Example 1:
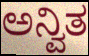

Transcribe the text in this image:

ಅನ್ವಿತ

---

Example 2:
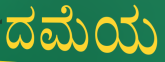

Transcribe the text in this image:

ದಮೆಯ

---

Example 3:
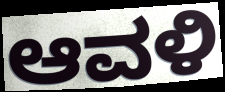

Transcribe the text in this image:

ಆವಳಿ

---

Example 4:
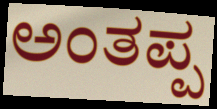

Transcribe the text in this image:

ಅಂತಪ್ಪ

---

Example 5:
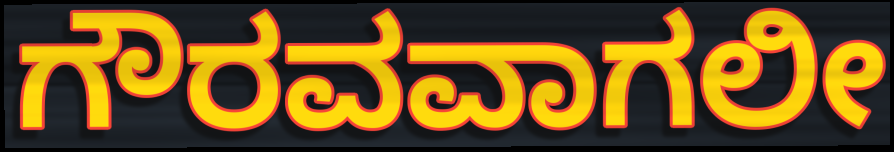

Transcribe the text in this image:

ಗೌರವವಾಗಲೀ